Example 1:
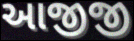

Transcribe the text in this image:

આજીજી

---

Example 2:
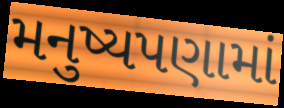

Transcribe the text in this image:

મનુષ્યપણામાં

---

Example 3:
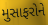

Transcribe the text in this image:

મુસાફરોને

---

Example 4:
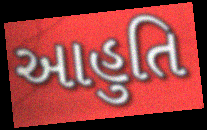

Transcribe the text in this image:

આહુતિ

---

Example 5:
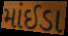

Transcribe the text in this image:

માંઈડા